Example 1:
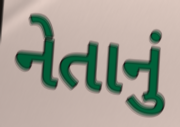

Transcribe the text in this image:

નેતાનું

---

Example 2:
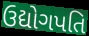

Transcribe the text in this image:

ઉદ્યોગપતિ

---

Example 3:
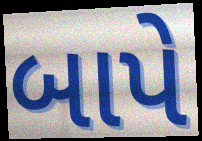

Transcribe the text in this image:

બાપે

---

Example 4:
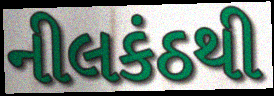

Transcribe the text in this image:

નીલકંઠથી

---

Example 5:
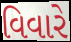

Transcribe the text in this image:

વિવારે